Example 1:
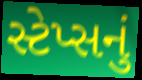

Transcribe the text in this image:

સ્ટેપ્સનું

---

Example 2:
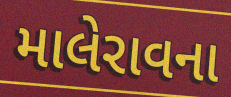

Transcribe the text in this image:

માલેરાવના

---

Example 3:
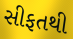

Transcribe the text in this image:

સીફતથી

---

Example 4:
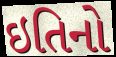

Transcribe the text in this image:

ઇતિનો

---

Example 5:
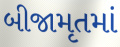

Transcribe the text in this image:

બીજામૃતમાં